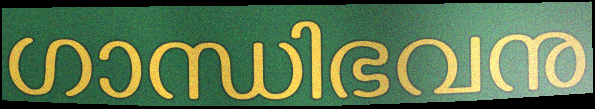
ഗാന്ധിഭവനു